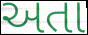
અતા